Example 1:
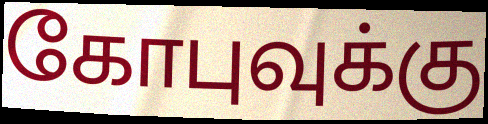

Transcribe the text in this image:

கோபுவுக்கு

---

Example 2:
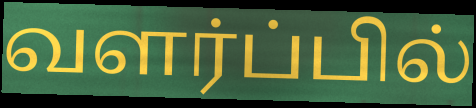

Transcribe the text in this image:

வளர்ப்பில்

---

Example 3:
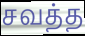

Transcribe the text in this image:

சவத்த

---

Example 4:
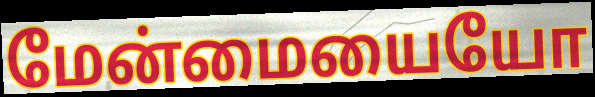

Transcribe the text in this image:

மேன்மையையோ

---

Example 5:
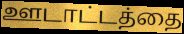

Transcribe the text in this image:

ஊடாட்டத்தை